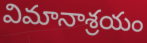
విమానాశ్రయం